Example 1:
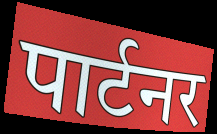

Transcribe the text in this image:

पार्टनर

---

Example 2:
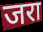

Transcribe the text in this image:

जरा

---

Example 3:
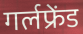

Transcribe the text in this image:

गर्लफ्रेंड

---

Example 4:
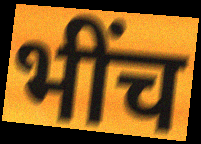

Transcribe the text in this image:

भींच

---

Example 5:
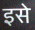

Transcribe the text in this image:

इसे